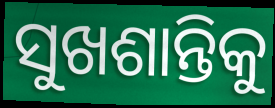
ସୁଖଶାନ୍ତିକୁ